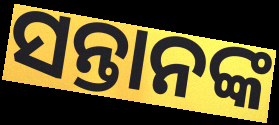
ସନ୍ତାନଙ୍କ